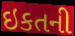
ઇકતની